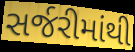
સર્જરીમાંથી